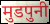
मुडपुनी